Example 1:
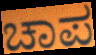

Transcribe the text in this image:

ಚಾಪ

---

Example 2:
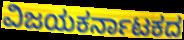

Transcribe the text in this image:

ವಿಜಯಕರ್ನಾಟಕದ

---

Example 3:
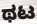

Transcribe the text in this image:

ಥಟ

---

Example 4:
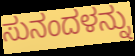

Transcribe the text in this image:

ಸುನಂದಳನ್ನು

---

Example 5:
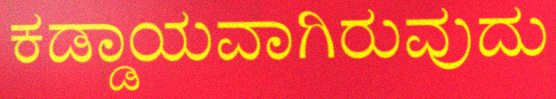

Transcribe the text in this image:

ಕಡ್ಡಾಯವಾಗಿರುವುದು